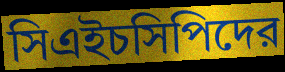
সিএইচসিপিদের